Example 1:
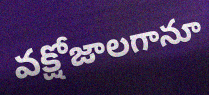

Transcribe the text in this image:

వక్షోజాలగానూ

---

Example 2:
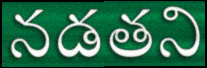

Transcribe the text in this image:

నడతని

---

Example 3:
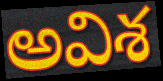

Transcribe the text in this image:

అవిశ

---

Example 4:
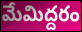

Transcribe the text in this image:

మేమిద్దరం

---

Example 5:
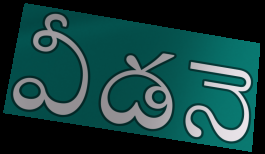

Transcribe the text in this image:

వీడనె